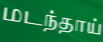
மடந்தாய்